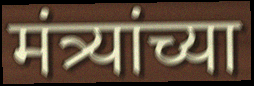
मंत्र्यांच्या